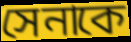
সেনাকে